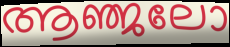
ആഞ്ജലോ